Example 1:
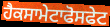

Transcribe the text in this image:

ਹੈਕਸਾਮੇਟਾਫੋਸਫੇਟ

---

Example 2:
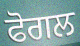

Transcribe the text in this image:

ਫੋਗਲ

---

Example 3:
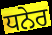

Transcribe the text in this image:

ਧਨੇਰ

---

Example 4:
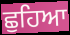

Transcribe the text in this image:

ਛੁਹਿਆ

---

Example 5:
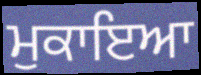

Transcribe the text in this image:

ਮੁਕਾਇਆ